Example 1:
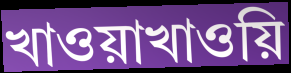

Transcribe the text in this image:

খাওয়াখাওয়ি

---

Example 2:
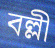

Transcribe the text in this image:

বল্লী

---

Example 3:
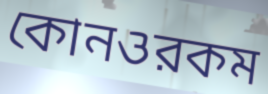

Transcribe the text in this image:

কোনওরকম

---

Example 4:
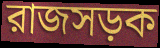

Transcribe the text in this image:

রাজসড়ক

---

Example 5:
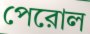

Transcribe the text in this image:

পেরোল